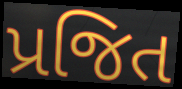
પ્રજિત